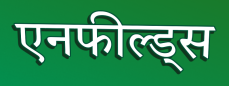
एनफील्ड्स